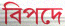
বিপদে